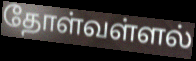
தோள்வள்ளல்